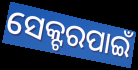
ସେକ୍ଟରପାଇଁ